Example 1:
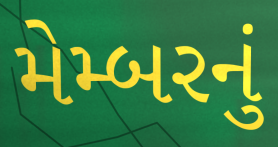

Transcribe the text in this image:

મેમ્બરનું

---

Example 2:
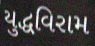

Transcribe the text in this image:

યુદ્ધવિરામ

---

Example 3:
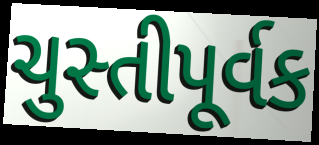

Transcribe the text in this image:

ચુસ્તીપૂર્વક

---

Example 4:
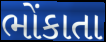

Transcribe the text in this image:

ભોંકાતા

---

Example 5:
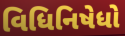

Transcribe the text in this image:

વિધિનિષેધો